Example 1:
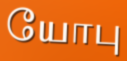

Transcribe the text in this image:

யோபு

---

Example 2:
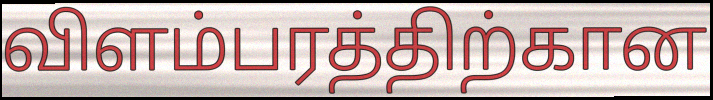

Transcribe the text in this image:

விளம்பரத்திற்கான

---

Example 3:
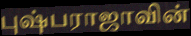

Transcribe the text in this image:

புஷ்பராஜாவின்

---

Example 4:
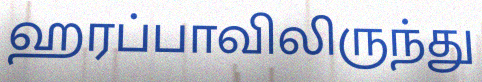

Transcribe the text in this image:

ஹரப்பாவிலிருந்து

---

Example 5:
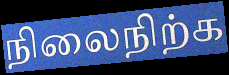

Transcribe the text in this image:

நிலைநிற்க